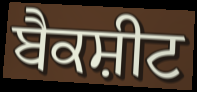
ਬੈਕਸ਼ੀਟ